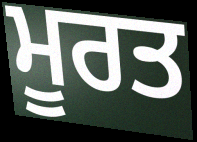
ਮੂਰਤ